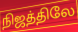
நிஜத்திலே